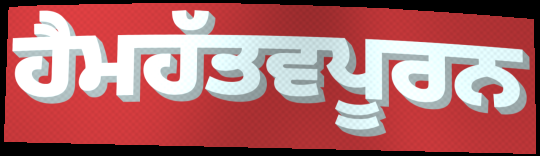
ਹੈਮਹੱਤਵਪੂਰਨ